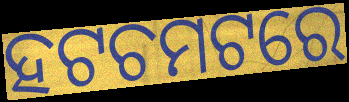
ହଟଚମଟରେ